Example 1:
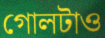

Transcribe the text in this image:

গোলটাও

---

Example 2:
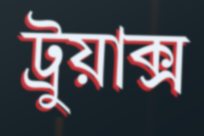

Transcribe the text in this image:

ট্রুয়াক্স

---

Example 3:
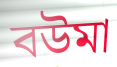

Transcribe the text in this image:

বউমা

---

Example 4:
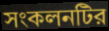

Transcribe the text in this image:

সংকলনটির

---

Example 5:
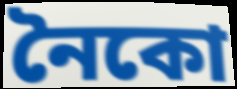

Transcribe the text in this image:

নৈকো